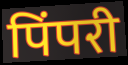
पिंपरी